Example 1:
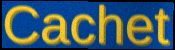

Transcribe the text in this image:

Cachet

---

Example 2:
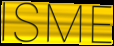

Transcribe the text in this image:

ISME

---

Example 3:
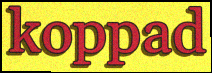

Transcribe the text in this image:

koppad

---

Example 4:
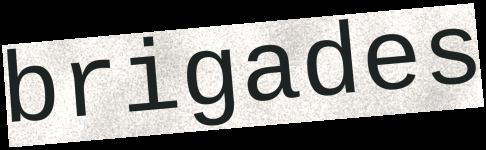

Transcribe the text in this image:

brigades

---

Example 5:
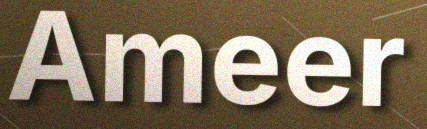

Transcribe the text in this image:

Ameer